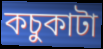
কচুকাটা